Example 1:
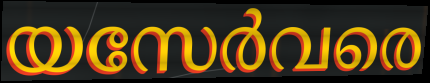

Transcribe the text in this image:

യസേർവരെ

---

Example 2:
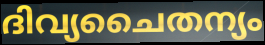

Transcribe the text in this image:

ദിവ്യചൈതന്യം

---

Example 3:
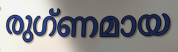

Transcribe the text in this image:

രുഗ്ണമായ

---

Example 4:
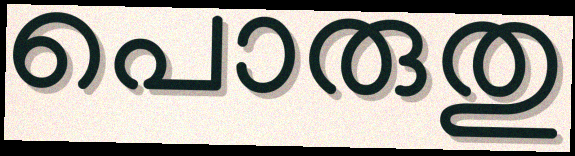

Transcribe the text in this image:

പൊരുതു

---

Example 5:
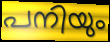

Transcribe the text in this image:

പനിയും